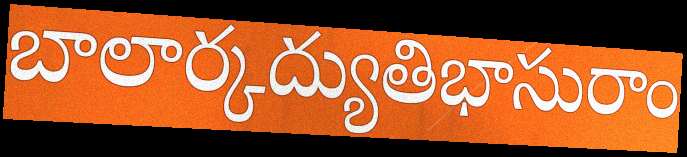
బాలార్కద్యుతిభాసురాం